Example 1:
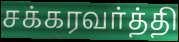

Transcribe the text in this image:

சக்கரவர்த்தி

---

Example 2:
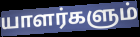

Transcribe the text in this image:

யாளர்களும்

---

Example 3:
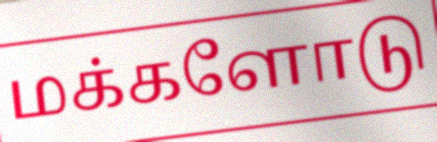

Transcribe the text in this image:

மக்களோடு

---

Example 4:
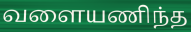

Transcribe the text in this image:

வளையணிந்த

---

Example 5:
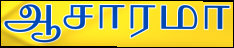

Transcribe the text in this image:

ஆசாரமா